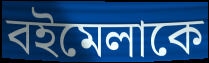
বইমেলাকে